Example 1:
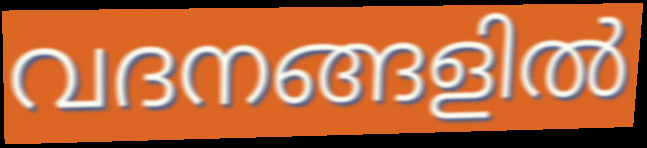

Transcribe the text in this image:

വദനങ്ങളിൽ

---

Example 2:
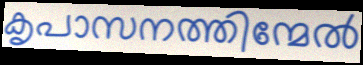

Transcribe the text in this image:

കൃപാസനത്തിന്മേൽ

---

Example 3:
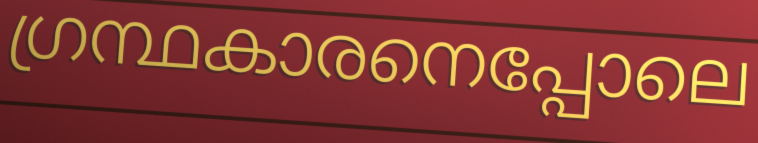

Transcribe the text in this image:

ഗ്രന്ഥകാരനെപ്പോലെ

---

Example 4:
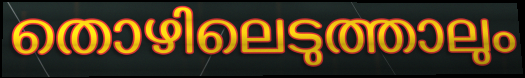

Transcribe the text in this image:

തൊഴിലെടുത്താലും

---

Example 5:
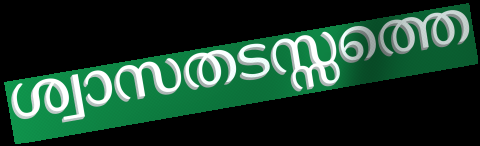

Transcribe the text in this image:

ശ്വാസതടസ്സത്തെ